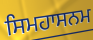
ਸਿਮਹਾਸਨਮ